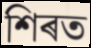
শিৰত